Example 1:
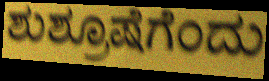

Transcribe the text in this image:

ಶುಶ್ರೂಷೆಗೆಂದು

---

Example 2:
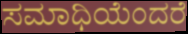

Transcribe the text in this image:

ಸಮಾಧಿಯೆಂದರೆ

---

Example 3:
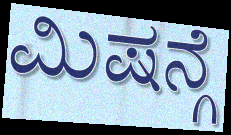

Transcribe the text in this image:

ಮಿಷನ್ಗೆ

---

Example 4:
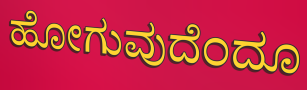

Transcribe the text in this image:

ಹೋಗುವುದೆಂದೂ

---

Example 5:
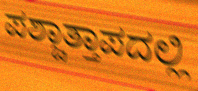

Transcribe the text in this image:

ಪಶ್ಚಾತ್ತಾಪದಲ್ಲಿ